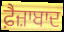
ਫ਼ੈਜ਼ਾਬਾਦ